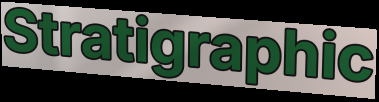
Stratigraphic